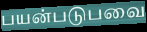
பயன்படுபவை